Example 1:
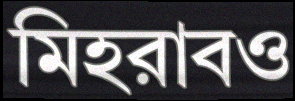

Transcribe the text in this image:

মিহরাবও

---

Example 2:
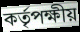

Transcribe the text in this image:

কর্তৃপক্ষীয়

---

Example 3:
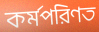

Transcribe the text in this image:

কর্মপরিণত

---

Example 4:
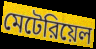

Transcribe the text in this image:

মেটেরিয়েল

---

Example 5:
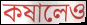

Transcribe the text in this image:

কষালেও